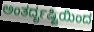
ಅಂತರ್ದೃಷ್ಟಿಯಿಂದ